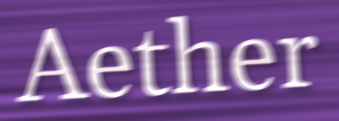
Aether